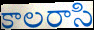
కాలరాసి